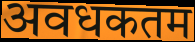
अवधकतम